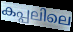
കപ്പലിലെ